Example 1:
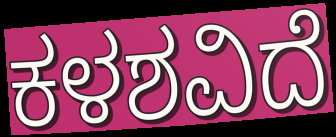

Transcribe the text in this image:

ಕಳಶವಿದೆ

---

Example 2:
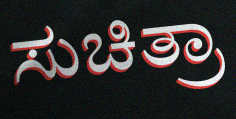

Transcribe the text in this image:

ಸುಚಿತ್ರಾ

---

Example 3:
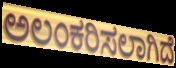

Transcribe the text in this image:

ಅಲಂಕರಿಸಲಾಗಿದೆ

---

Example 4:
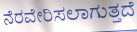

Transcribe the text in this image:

ನೆರವೇರಿಸಲಾಗುತ್ತದೆ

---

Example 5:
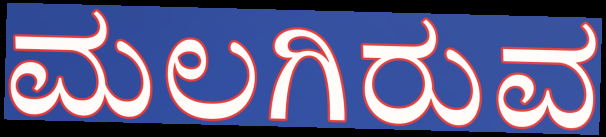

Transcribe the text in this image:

ಮಲಗಿರುವ